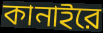
কানাইরে